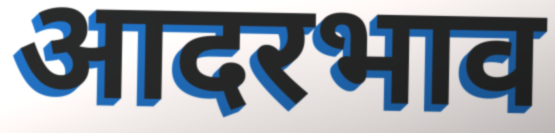
आदरभाव